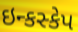
ઇન્કસ્કેપ